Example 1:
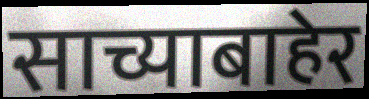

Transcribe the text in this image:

साच्याबाहेर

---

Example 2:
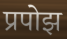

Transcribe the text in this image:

प्रपोझ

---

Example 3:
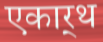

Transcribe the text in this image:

एकार्थ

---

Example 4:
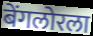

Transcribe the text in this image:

बेंगलोरला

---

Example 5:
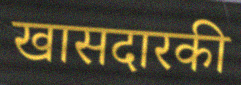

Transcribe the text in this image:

खासदारकी